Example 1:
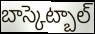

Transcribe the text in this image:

బాస్కెట్బాల్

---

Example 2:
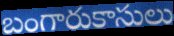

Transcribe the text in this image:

బంగారుకాసులు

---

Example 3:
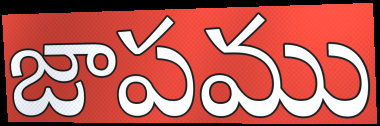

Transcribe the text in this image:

జాపము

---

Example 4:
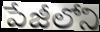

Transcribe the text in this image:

పేజీలోని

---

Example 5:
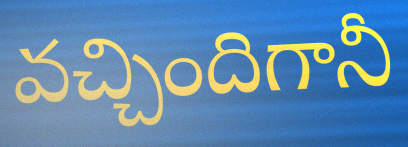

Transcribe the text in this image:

వచ్చిందిగానీ